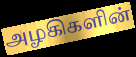
அழகிகளின்